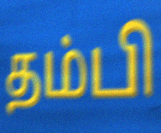
தம்பி